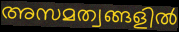
അസമത്വങ്ങളിൽ